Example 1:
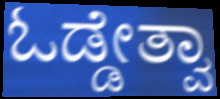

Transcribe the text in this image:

ಓಡ್ಡೇತ್ವಾ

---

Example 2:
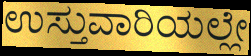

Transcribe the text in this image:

ಉಸ್ತುವಾರಿಯಲ್ಲೇ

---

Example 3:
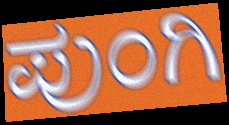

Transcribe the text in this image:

ಪುಂಗಿ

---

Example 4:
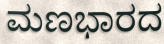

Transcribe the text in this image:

ಮಣಭಾರದ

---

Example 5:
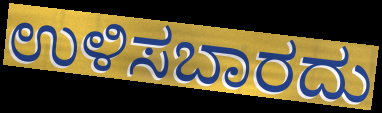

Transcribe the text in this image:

ಉಳಿಸಬಾರದು